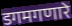
डगमगणारे